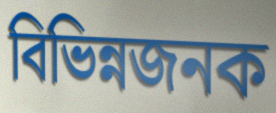
বিভিন্নজনক